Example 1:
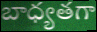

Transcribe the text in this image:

బాధ్యతగా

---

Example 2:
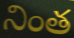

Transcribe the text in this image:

నింత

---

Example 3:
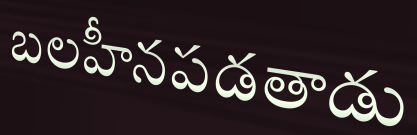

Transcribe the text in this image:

బలహీనపడతాడు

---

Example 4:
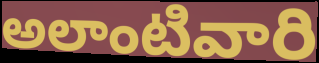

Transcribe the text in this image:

అలాంటివారి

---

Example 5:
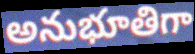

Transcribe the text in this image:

అనుభూతిగా